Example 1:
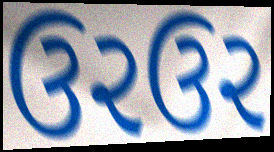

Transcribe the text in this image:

ઉરઉર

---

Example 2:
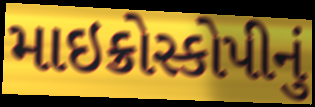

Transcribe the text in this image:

માઇક્રોસ્કોપીનું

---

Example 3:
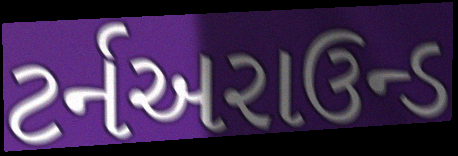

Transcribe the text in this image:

ટર્નઅરાઉન્ડ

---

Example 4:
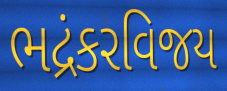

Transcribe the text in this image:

ભદ્રંકરવિજય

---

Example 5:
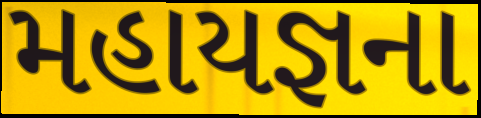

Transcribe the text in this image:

મહાયજ્ઞના